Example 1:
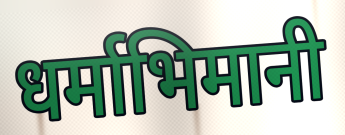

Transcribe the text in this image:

धर्माभिमानी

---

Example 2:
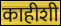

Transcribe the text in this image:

काहीशी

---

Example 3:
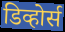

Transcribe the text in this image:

डिव्होर्स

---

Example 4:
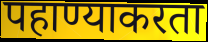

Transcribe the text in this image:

पहाण्याकरता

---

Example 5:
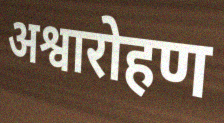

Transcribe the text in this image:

अश्वारोहण